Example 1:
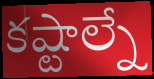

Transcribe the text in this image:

కష్టాల్నే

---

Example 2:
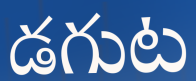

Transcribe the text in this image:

డగుట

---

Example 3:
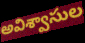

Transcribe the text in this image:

అవిశ్వాసుల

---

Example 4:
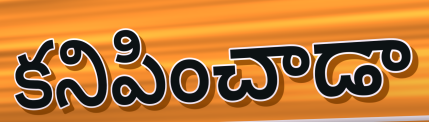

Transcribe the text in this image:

కనిపించాడా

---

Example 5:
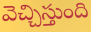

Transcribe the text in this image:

వెచ్చిస్తుంది